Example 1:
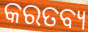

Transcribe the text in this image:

କରତବ୍ୟ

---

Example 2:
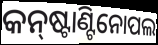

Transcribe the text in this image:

କନ୍‌ଷ୍ଟାଣ୍ଟିନୋପଲ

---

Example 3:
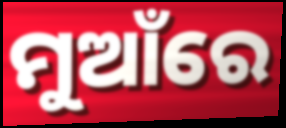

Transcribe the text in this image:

ମୁଆଁରେ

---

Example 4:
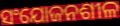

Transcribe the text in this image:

ସଂଯୋଜନଶୀଳ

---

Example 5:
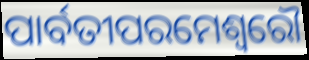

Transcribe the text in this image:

ପାର୍ବତୀପରମେଶ୍ଵରୌ